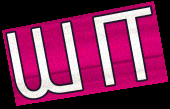
யா